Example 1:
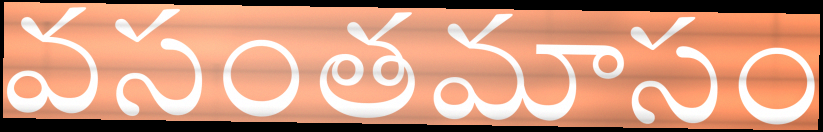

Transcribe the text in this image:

వసంతమాసం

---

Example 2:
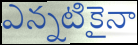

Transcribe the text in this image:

ఎన్నటికైనా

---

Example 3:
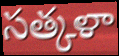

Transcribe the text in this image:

సత్కళా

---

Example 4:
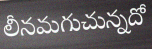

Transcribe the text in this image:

లీనమగుచున్నదో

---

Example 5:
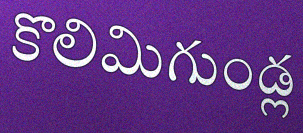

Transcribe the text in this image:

కొలిమిగుండ్ల